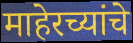
माहेरच्यांचे